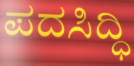
ಪದಸಿದ್ಧಿ